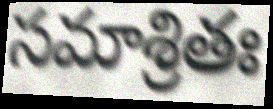
సమాశ్రితః